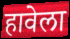
हावेला